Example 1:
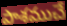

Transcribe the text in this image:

పాశముచే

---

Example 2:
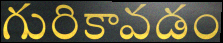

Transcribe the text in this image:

గురికావడం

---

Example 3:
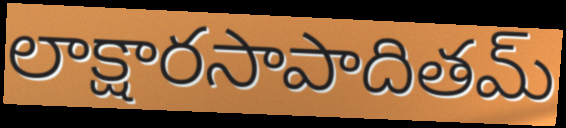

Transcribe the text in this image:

లాక్షారసాపాదితమ్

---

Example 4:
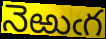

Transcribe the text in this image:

నెఱుఁగ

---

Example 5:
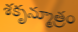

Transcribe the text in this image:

శకృన్మూత్రం